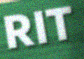
RIT